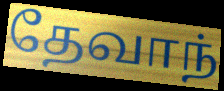
தேவாந்